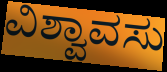
ವಿಶ್ವಾವಸು